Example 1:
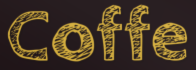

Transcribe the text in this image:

Coffe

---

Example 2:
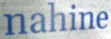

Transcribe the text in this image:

nahine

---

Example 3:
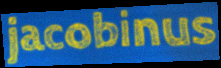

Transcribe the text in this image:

jacobinus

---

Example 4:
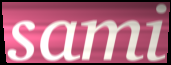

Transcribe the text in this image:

sami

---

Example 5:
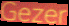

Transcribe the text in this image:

Gezer